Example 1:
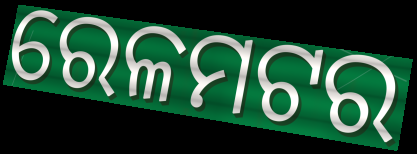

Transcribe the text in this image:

ରେଳମଟର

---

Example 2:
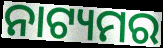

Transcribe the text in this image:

ନାଟ୍ୟମର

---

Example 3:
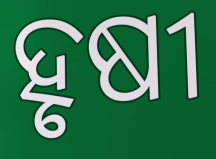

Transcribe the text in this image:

ହୃଷୀ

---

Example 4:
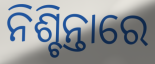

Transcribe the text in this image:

ନିଶ୍ଚିନ୍ତାରେ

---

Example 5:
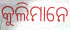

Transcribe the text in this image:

କୁଲିମାନେ